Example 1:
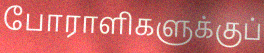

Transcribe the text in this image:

போராளிகளுக்குப்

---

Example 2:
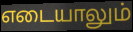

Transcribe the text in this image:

எடையாலும்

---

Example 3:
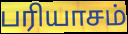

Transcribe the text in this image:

பரியாசம்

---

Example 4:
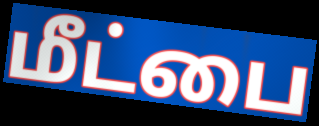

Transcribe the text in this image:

மீட்பை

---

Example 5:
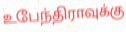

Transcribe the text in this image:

உபேந்திராவுக்கு